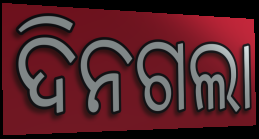
ଦିନଗଲା